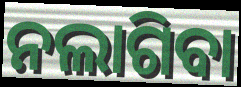
ନଲାଗିବା